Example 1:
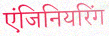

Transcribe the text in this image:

एंजिनियरिंग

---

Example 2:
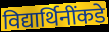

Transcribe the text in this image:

विद्यार्थिनींकडे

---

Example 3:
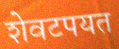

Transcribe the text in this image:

शेवटपयत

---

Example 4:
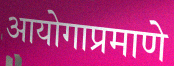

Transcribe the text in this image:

आयोगाप्रमाणे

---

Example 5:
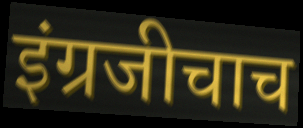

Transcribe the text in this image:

इंग्रजीचाच